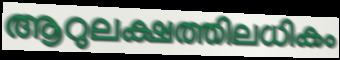
ആറുലക്ഷത്തിലധികം